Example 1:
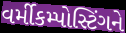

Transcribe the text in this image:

વર્મીકમ્પોસ્ટિંગને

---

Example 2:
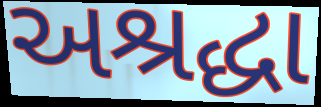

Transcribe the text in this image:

અશ્રદ્ધા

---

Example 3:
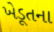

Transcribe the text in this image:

ખેડૂતના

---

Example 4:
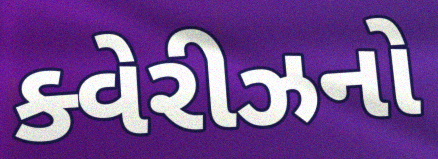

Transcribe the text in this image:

ક્વેરીઝનો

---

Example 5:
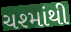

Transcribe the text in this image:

ચશ્માંથી